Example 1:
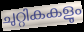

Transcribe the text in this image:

ചുറ്റികകളും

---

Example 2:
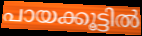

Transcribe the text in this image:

പായക്കൂട്ടിൽ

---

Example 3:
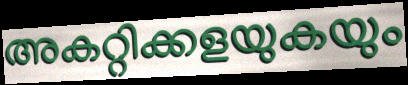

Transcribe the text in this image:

അകറ്റിക്കളയുകയും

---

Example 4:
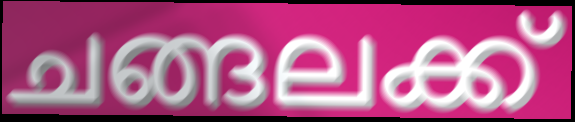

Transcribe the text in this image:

ചങ്ങലക്ക്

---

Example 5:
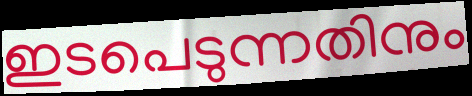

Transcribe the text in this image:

ഇടപെടുന്നതിനും